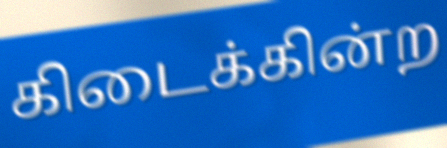
கிடைக்கின்ற